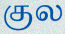
குல